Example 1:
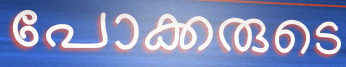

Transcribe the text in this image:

പോക്കരുടെ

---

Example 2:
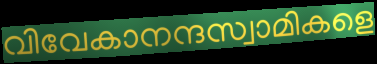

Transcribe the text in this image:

വിവേകാനന്ദസ്വാമികളെ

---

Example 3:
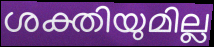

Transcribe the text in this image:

ശക്തിയുമില്ല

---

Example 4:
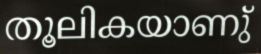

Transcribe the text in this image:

തൂലികയാണു്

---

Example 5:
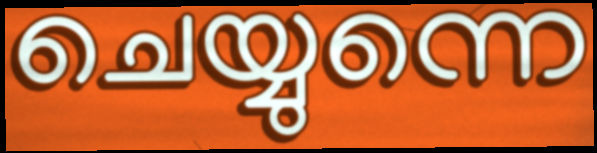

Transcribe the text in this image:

ചെയ്യുന്നെ